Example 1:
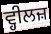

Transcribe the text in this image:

ਵ੍ਹੀਲਜ਼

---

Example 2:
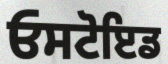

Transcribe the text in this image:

ਓਸਟੋਇਡ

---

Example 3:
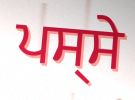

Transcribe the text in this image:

ਪਸ੍ਸੇ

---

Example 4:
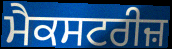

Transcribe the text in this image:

ਮੈਕਸਟਰੀਜ਼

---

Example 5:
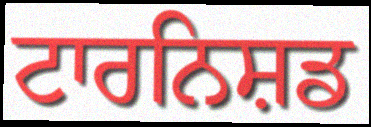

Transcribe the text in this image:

ਟਾਰਨਿਸ਼ਡ